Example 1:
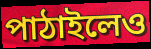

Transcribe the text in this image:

পাঠাইলেও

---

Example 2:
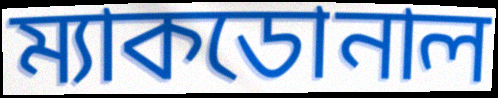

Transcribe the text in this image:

ম্যাকডোনাল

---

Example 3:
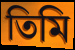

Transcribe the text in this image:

তিমি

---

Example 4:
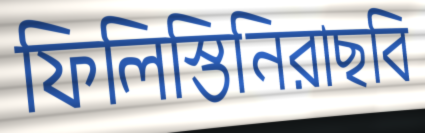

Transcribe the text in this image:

ফিলিস্তিনিরাছবি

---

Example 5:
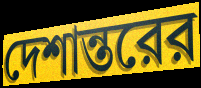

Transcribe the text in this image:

দেশান্তরের